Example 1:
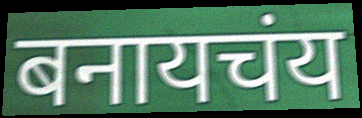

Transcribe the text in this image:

बनायचंय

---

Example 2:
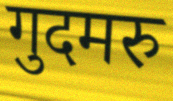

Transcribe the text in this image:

गुदमरु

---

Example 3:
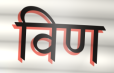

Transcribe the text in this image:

विण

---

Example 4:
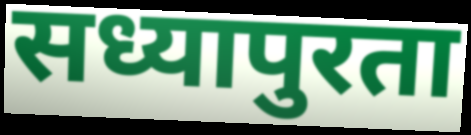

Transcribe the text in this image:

सध्यापुरता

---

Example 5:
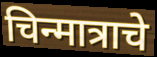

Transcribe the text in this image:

चिन्मात्राचे